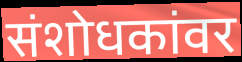
संशोधकांवर